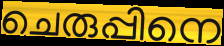
ചെരുപ്പിനെ